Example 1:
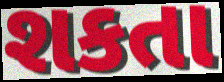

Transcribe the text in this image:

શકતા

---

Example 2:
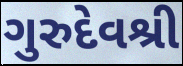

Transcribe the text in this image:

ગુરુદેવશ્રી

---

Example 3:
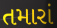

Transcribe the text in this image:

તમારાં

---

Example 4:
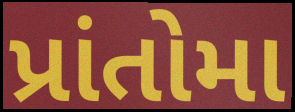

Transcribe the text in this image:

પ્રાંતોમા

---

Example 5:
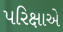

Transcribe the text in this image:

પરિક્ષાએ